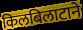
किलबिलाटाने